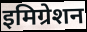
इमिग्रेशन